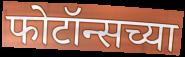
फोटॉन्सच्या